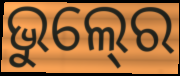
ଭୁଲ୍‍ରେ